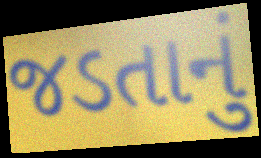
જડતાનું